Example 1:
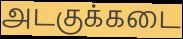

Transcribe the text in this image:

அடகுக்கடை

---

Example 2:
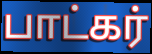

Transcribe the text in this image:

பாட்கர்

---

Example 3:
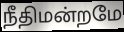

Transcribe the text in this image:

நீதிமன்றமே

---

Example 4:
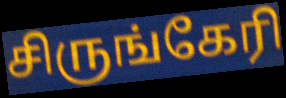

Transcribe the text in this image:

சிருங்கேரி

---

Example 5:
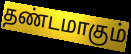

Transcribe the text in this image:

தண்டமாகும்